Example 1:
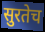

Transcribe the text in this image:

सुरतेच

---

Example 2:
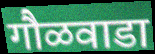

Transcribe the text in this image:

गौळवाडा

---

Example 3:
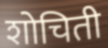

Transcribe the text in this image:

शोचिती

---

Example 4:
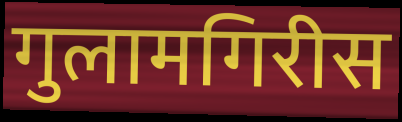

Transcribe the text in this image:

गुलामगिरीस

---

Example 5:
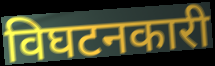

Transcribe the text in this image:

विघटनकारी